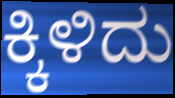
ಕ್ಕಿಳಿದು